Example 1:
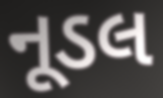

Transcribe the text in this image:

નૂડલ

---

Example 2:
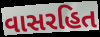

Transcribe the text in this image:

વાસરહિત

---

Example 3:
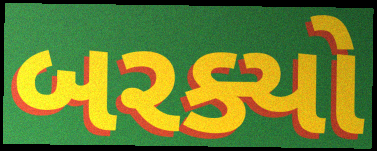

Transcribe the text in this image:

બરક્યો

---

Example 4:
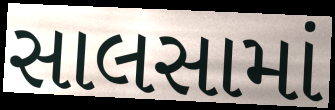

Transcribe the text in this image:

સાલસામાં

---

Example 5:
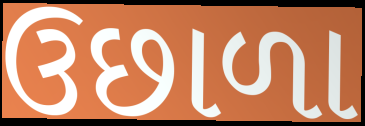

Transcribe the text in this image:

ઉછાળા